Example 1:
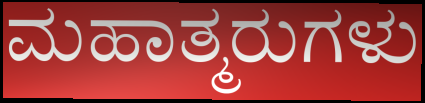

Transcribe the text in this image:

ಮಹಾತ್ಮರುಗಳು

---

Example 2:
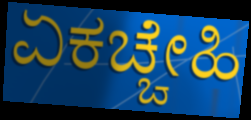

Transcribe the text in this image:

ಏಕಚ್ಚೇಹಿ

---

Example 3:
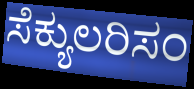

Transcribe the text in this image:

ಸೆಕ್ಯುಲರಿಸಂ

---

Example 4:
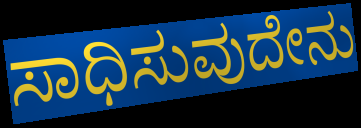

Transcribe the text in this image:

ಸಾಧಿಸುವುದೇನು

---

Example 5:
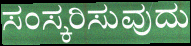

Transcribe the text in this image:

ಸಂಸ್ಕರಿಸುವುದು